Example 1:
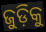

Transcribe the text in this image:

ଜୁଡ଼ିକୁ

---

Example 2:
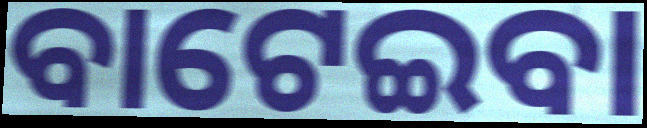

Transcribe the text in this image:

ବାଟେଇବା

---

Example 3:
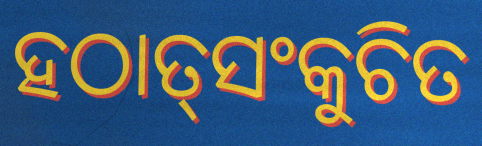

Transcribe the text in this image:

ହଠାତ୍‌ସଂକୁଚିତ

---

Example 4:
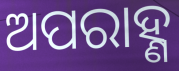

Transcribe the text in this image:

ଅପରାହ୍ଣ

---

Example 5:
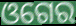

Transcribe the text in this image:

ଓଗେର